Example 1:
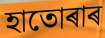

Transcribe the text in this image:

হাতোৰাৰ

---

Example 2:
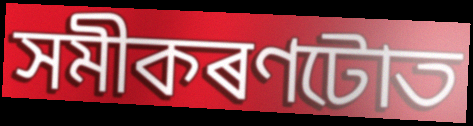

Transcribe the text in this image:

সমীকৰণটোত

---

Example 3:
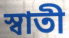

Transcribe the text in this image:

স্বাতী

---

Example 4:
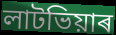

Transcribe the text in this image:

লাটভিয়াৰ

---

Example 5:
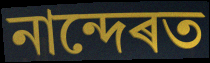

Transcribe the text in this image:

নান্দেৰত